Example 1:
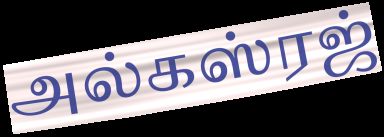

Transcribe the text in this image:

அல்கஸ்ரஜ்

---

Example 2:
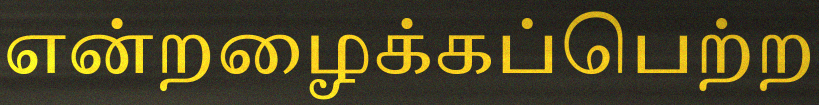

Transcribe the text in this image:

என்றழைக்கப்பெற்ற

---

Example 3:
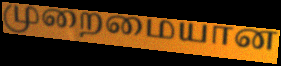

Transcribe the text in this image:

முறைமையான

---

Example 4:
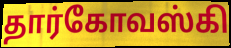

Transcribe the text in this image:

தார்கோவஸ்கி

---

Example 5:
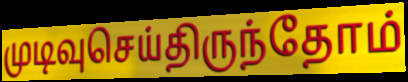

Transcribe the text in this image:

முடிவுசெய்திருந்தோம்